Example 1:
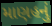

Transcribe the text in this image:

માણહનું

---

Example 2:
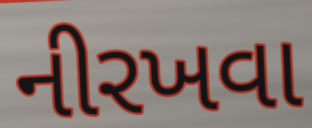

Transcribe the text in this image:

નીરખવા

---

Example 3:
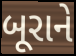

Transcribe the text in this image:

બૂરાને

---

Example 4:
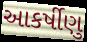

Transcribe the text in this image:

આકર્ષીણુ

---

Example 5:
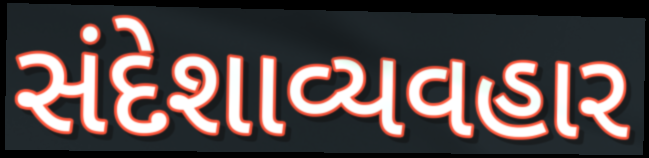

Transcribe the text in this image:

સંદેશાવ્યવહાર